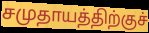
சமுதாயத்திற்குச்